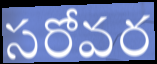
సరోవర